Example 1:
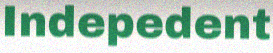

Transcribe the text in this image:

Indepedent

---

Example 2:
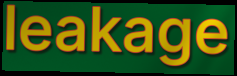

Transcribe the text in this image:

leakage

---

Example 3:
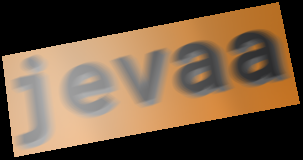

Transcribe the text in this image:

jevaa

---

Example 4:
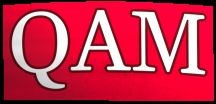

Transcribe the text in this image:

QAM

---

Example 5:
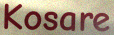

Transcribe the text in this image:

Kosare